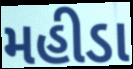
મહીડા